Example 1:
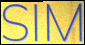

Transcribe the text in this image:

SIM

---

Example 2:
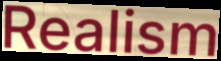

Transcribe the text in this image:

Realism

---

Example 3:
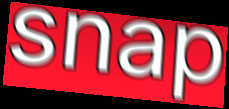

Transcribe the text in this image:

snap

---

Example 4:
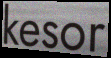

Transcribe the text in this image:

kesor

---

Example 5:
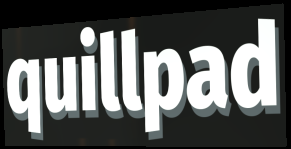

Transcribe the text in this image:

quillpad